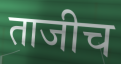
ताजीच